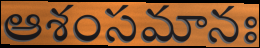
ఆశంసమానః